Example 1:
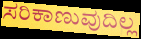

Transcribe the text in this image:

ಸರಿಕಾಣುವುದಿಲ್ಲ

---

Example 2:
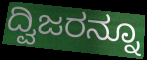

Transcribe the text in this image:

ದ್ವಿಜರನ್ನೂ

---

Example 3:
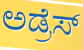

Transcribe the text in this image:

ಅಡ್ರೆಸ್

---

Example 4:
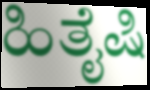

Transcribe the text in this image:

ಹಿತೈಷಿ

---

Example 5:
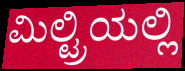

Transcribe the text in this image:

ಮಿಲ್ಟ್ರಿಯಲ್ಲಿ